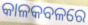
କାଳକବଳରେ